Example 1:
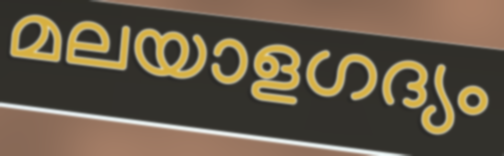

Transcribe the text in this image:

മലയാളഗദ്യം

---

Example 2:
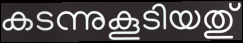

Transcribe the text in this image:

കടന്നുകൂടിയതു്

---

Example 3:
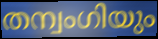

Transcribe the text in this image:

തന്വംഗിയും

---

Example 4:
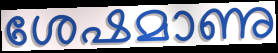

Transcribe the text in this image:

ശേഷമാണു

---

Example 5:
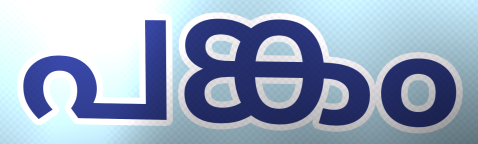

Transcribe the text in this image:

പങ്കം